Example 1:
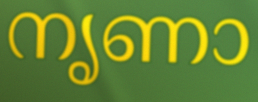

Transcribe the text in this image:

നൃണാ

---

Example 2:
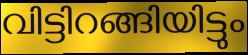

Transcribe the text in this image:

വിട്ടിറങ്ങിയിട്ടും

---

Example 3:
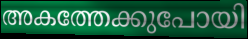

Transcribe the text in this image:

അകത്തേക്കുപോയി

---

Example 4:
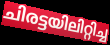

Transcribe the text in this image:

ചിരട്ടയിലിറ്റിച്ച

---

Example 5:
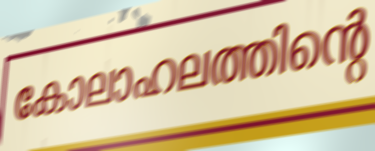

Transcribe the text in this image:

കോലാഹലത്തിന്റെ